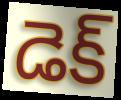
డెక్